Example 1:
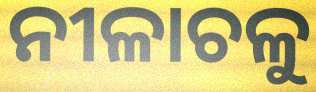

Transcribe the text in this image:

ନୀଳାଚଳୁ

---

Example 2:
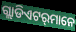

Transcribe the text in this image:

ଗ୍ଲାଡିଏଟର୍‍ମାନେ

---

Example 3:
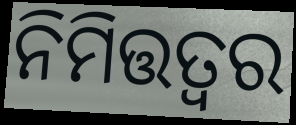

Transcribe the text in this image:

ନିମିତ୍ତତ୍ଵର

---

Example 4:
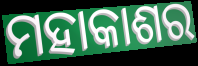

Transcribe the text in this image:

ମହାକାଶର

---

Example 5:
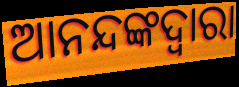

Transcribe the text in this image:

ଆନନ୍ଦଙ୍କଦ୍ୱାରା